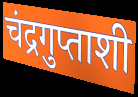
चंद्रगुप्ताशी